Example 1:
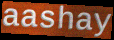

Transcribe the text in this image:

aashay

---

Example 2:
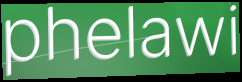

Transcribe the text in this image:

phelawi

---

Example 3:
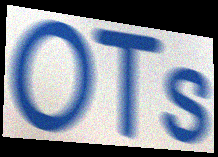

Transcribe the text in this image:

OTs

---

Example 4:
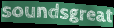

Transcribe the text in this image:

soundsgreat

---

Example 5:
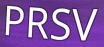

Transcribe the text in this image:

PRSV